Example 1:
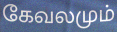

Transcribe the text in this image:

கேவலமும்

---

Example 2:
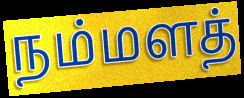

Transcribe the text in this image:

நம்மளத்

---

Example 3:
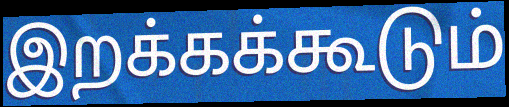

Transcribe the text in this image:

இறக்கக்கூடும்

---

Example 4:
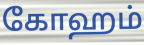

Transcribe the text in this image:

கோஹம்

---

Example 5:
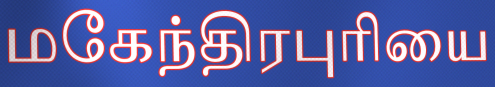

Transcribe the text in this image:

மகேந்திரபுரியை